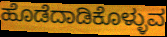
ಹೊಡೆದಾಡಿಕೊಳ್ಳುವ